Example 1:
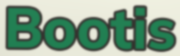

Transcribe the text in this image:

Bootis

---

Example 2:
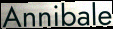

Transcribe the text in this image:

Annibale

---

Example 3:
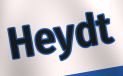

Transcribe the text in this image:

Heydt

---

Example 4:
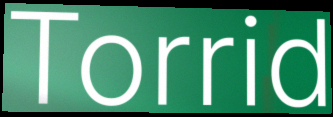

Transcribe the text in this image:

Torrid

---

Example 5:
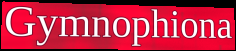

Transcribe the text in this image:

Gymnophiona